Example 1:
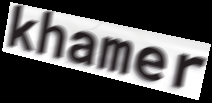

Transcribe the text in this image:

khamer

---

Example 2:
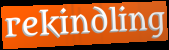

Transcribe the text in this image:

rekindling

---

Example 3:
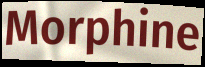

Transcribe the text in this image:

Morphine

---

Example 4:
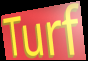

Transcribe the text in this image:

Turf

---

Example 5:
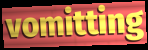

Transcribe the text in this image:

vomitting